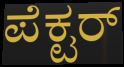
ಪೆಕ್ಟರ್